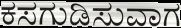
ಕಸಗುಡಿಸುವಾಗ